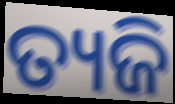
ତ୍ୟଜି